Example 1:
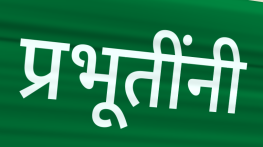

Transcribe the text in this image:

प्रभूतींनी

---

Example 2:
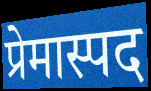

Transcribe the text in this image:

प्रेमास्पद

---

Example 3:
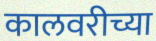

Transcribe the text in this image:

कालवरीच्या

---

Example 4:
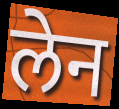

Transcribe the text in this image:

लेन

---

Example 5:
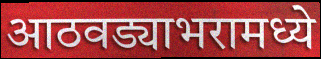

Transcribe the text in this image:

आठवड्याभरामध्ये